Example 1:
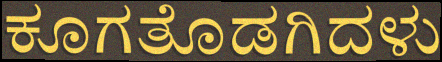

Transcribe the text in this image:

ಕೂಗತೊಡಗಿದಳು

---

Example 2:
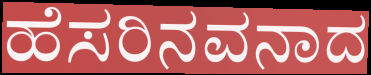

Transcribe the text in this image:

ಹೆಸರಿನವನಾದ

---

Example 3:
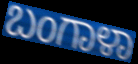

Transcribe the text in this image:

ಬಂಗಾಳಾ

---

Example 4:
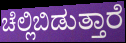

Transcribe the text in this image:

ಚೆಲ್ಲಿಬಿಡುತ್ತಾರೆ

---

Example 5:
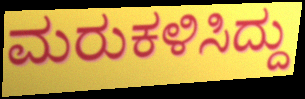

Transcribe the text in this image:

ಮರುಕಳಿಸಿದ್ದು